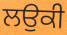
ਲਉਕੀ